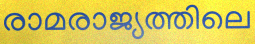
രാമരാജ്യത്തിലെ